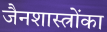
जैनशास्त्रोंका